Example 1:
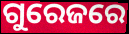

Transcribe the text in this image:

ଗୁରେଜରେ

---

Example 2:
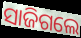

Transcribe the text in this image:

ସାଜିଗଲେ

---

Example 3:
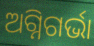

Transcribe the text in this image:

ଅଗ୍ନିଗର୍ଭା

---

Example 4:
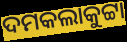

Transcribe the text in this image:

ଦମକଲାକୁଟ୍ଟା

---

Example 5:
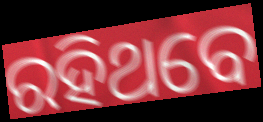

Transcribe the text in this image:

ରହିଥବେ